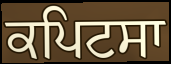
ਕਪਿਟਸਾ